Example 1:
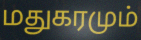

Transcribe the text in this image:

மதுகரமும்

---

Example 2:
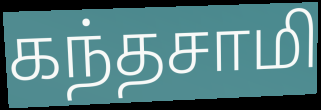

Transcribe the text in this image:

கந்தசாமி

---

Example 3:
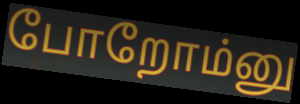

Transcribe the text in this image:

போறோம்னு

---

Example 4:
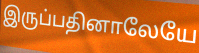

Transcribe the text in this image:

இருப்பதினாலேயே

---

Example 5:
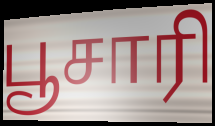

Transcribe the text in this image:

பூசாரி